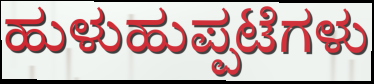
ಹುಳುಹುಪ್ಪಟೆಗಳು